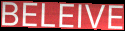
BELEIVE